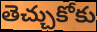
తెచ్చుకోకు